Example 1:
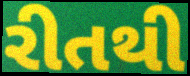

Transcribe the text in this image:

રીતથી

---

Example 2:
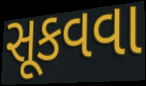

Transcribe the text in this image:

સૂકવવા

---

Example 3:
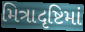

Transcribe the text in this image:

મિત્રાદૃષ્ટિમાં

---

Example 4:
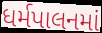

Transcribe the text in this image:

ધર્મપાલનમાં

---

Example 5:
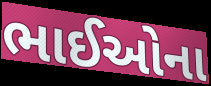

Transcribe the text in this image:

ભાઈઓના